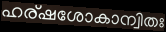
ഹര്ഷശോകാന്വിതഃ